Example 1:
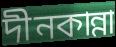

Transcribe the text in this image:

দীনকান্না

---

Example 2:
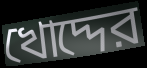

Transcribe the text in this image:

খোদ্দের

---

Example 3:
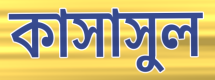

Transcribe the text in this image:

কাসাসুল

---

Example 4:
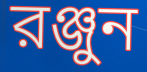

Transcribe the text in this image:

রঞ্জুন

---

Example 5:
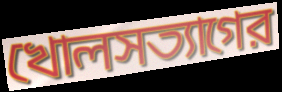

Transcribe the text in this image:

খোলসত্যাগের